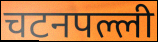
चटनपल्ली